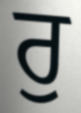
ਰੁ